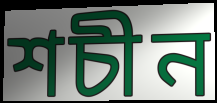
শচীন